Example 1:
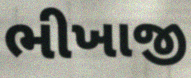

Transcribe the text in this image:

ભીખાજી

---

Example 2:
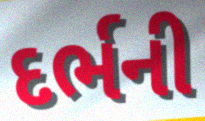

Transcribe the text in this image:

દર્ભની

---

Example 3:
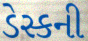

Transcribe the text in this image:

ડેસ્કની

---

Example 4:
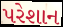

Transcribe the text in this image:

પરેશાન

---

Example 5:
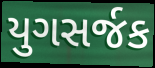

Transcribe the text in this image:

યુગસર્જક